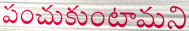
పంచుకుంటామని